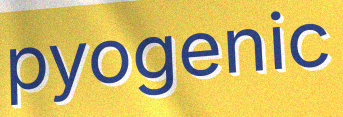
pyogenic